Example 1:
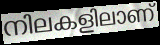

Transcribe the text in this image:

നിലകളിലാണ്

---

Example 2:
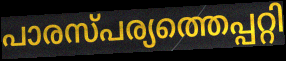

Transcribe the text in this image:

പാരസ്പര്യത്തെപ്പറ്റി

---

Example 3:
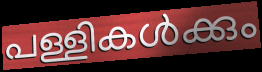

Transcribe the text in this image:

പള്ളികൾക്കും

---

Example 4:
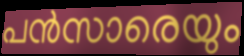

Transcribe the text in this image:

പൻസാരെയും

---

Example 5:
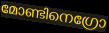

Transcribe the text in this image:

മോണ്ടിനെഗ്രോ